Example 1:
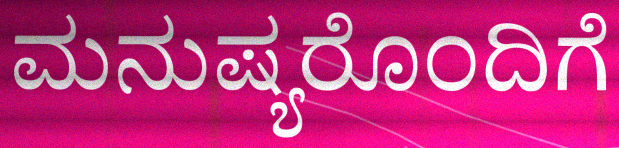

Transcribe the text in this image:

ಮನುಷ್ಯರೊಂದಿಗೆ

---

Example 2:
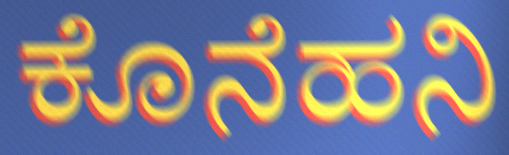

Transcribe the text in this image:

ಕೊನೆಹನಿ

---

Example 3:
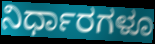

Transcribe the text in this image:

ನಿರ್ಧಾರಗಳೂ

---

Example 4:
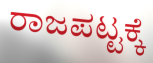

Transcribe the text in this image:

ರಾಜಪಟ್ಟಕ್ಕೆ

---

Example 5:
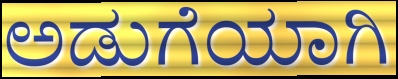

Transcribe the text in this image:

ಅಡುಗೆಯಾಗಿ